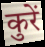
कुरें